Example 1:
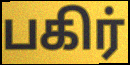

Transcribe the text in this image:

பகிர்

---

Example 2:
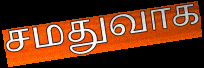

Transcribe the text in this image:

சமதுவாக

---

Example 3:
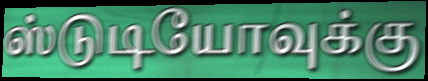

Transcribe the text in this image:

ஸ்டுடியோவுக்கு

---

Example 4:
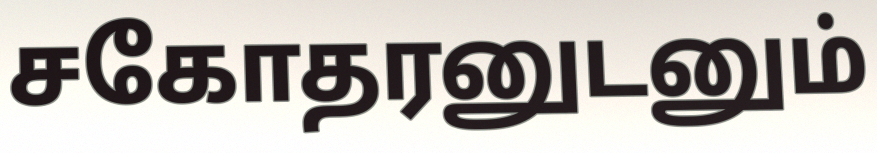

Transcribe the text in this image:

சகோதரனுடனும்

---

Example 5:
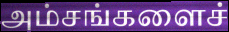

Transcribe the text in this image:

அம்சங்களைச்